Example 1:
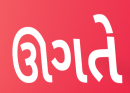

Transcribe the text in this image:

ઊગતે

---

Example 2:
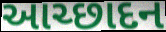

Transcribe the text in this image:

આચ્છાદન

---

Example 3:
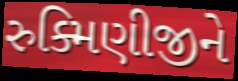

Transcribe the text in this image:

રુક્મિણીજીને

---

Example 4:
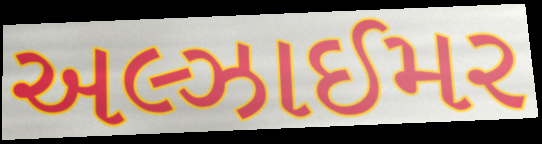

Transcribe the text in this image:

અલ્ઝાઈમર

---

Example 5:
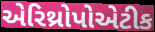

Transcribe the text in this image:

એરિથ્રોપોએટીક